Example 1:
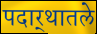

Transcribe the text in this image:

पदार्थातले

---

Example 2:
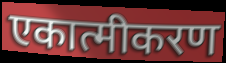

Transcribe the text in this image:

एकात्मीकरण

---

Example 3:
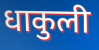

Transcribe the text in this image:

धाकुली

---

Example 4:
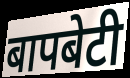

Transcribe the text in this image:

बापबेटी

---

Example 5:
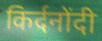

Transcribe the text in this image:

किर्दनोंदी